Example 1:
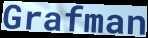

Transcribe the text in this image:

Grafman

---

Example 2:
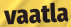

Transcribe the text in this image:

vaatla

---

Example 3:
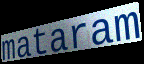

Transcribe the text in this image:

mataram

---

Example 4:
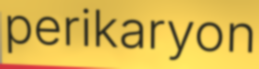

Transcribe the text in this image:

perikaryon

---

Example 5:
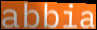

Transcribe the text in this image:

abbia